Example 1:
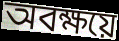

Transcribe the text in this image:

অবক্ষয়ে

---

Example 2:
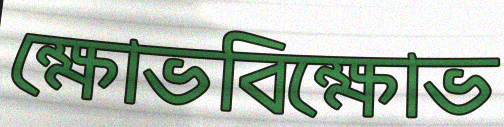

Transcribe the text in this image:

ক্ষোভবিক্ষোভ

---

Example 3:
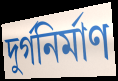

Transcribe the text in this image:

দুর্গনির্মাণ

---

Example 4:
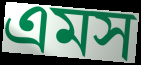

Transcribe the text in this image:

এমস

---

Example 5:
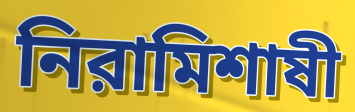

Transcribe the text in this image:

নিরামিশাষী